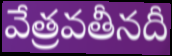
వేత్రవతీనదీ